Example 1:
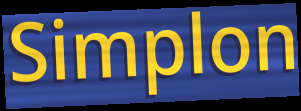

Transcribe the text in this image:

Simplon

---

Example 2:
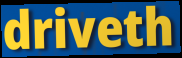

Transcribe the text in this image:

driveth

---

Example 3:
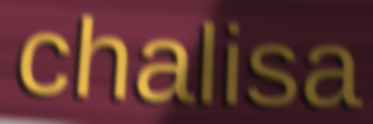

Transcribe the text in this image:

chalisa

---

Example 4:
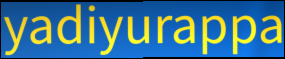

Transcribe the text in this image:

yadiyurappa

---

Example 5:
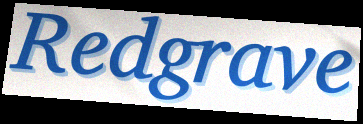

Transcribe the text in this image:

Redgrave